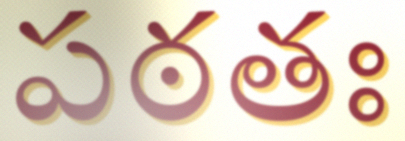
పఠతః